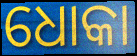
ଧୋକା